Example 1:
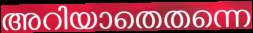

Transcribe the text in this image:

അറിയാതെതന്നെ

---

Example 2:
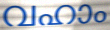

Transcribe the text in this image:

വഹാം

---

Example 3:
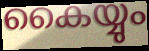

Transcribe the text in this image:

കൈയ്യും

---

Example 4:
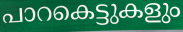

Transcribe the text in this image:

പാറകെട്ടുകളും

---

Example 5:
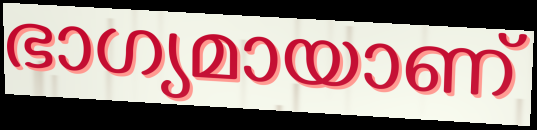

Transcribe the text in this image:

ഭാഗ്യമായാണ്